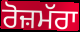
ਰੋਜ਼ਮੱਰਾ